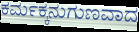
ಕರ್ಮಕ್ಕನುಗುಣವಾದ